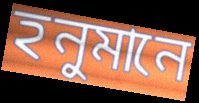
হনুমানে